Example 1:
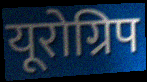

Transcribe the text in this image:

यूरोग्रिप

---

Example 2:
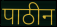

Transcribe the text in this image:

पाठीन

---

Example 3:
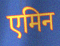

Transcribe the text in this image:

एमिन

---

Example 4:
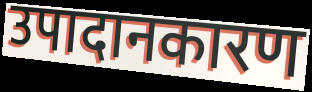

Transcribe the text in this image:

उपादानकारण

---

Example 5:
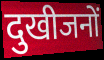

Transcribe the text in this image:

दुखीजनों